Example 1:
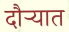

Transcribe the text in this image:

दौर्‍यात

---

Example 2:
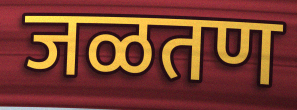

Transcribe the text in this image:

जळतण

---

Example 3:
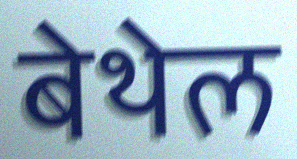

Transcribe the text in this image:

बेथेल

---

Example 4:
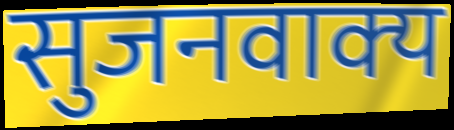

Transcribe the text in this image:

सुजनवाक्य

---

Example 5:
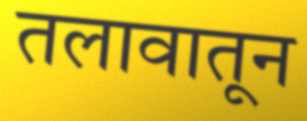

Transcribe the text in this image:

तलावातून